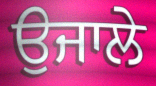
ਉਜਾਲੇ